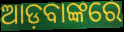
ଆଡ଼ବାଙ୍କରେ